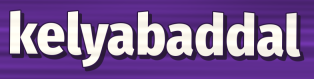
kelyabaddal